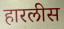
हारलीस